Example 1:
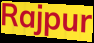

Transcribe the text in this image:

Rajpur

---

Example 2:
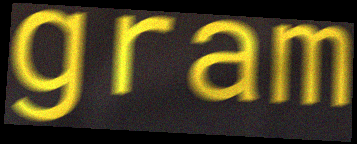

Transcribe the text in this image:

gram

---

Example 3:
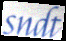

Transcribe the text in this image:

sndt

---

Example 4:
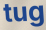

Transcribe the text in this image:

tug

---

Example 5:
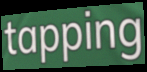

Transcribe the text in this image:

tapping